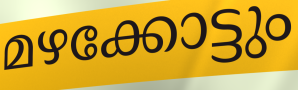
മഴക്കോട്ടും